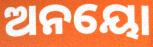
ଅନୟୋ